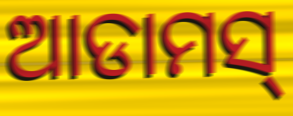
ଆଡାମସ୍